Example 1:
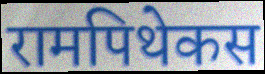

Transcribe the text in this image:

रामपिथेकस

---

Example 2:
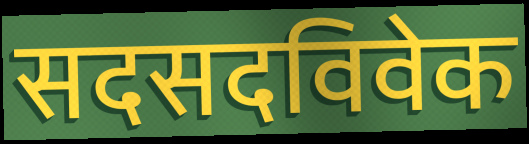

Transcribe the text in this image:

सदसदविवेक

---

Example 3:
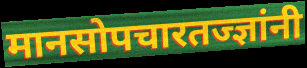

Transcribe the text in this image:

मानसोपचारतज्ज्ञांनी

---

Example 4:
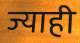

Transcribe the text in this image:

ज्याही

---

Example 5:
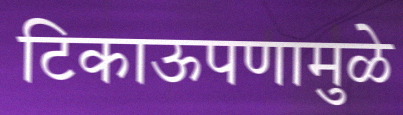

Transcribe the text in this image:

टिकाऊपणामुळे